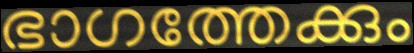
ഭാഗത്തേക്കും